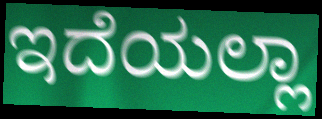
ಇದೆಯಲ್ಲಾ